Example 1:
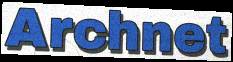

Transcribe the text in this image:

Archnet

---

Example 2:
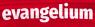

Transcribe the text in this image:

evangelium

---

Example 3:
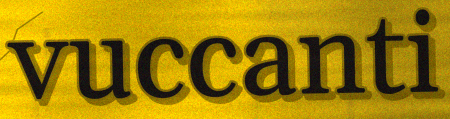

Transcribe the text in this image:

vuccanti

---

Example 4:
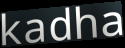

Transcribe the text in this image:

kadha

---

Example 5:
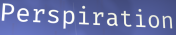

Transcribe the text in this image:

Perspiration